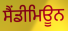
ਸੈਂਡੀਮਿਊਨ